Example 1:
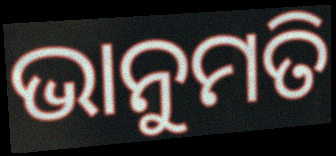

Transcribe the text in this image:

ଭାନୁମତି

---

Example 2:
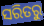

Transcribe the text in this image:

ସରିତରୁ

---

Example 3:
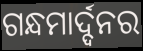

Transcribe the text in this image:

ଗନ୍ଧମାର୍ଦ୍ଦନର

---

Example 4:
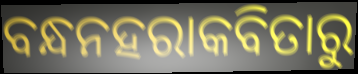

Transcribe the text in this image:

ବନ୍ଧନହରାକବିତାରୁ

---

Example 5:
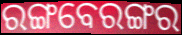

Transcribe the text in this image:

ରଙ୍ଗବେରଙ୍ଗର